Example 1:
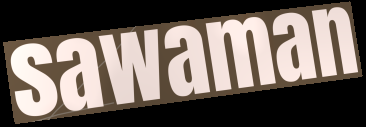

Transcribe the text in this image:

sawaman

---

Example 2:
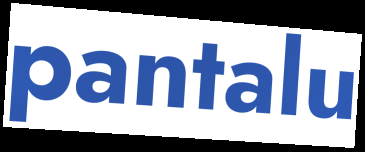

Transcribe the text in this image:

pantalu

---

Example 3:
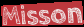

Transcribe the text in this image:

Misson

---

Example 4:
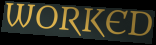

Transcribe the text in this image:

WORKED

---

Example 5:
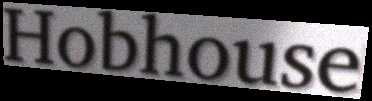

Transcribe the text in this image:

Hobhouse